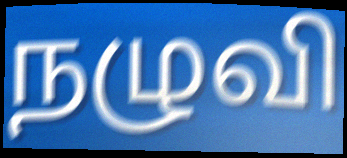
நழுவி